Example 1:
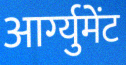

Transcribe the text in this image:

आर्ग्युमेंट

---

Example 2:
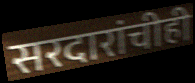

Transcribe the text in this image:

सरदारांचीही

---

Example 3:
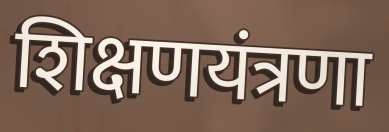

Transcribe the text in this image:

शिक्षणयंत्रणा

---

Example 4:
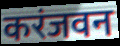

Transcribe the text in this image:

करंजवन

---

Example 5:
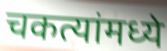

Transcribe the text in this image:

चकत्यांमध्ये